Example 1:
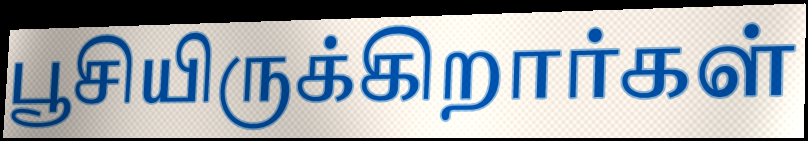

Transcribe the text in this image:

பூசியிருக்கிறார்கள்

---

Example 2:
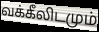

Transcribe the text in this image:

வக்கீலிடமும்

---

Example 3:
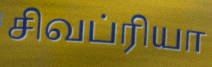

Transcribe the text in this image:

சிவப்ரியா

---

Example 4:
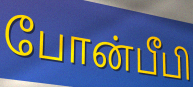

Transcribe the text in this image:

போன்பீபி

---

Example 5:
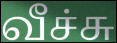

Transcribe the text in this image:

வீச்சு